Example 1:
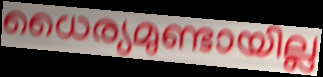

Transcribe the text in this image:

ധൈര്യമുണ്ടായില്ല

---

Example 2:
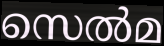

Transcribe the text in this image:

സെൽമ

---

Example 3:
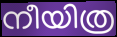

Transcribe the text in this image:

നീയിത്ര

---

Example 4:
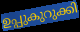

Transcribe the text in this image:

ഉപ്പുകുറുക്കി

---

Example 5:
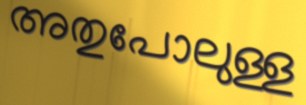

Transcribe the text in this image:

അതുപോലുള്ള